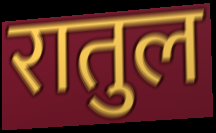
रातुल